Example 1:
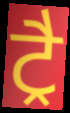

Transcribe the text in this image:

ट्रै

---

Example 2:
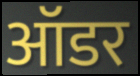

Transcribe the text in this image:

ऑडर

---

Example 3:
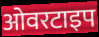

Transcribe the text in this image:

ओवरटाइप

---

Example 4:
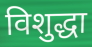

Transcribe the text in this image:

विशुद्धा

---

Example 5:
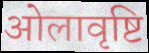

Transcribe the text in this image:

ओलावृष्टि